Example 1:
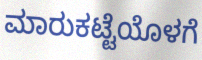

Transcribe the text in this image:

ಮಾರುಕಟ್ಟೆಯೊಳಗೆ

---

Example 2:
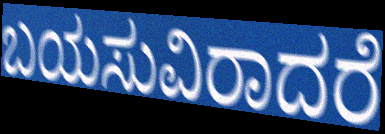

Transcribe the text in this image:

ಬಯಸುವಿರಾದರೆ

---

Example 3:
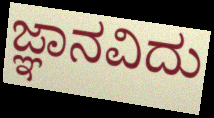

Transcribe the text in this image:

ಜ್ಞಾನವಿದು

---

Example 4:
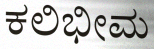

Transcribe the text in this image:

ಕಲಿಭೀಮ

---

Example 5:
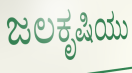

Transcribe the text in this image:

ಜಲಕೃಷಿಯು